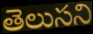
తెలుసని